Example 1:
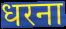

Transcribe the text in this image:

धरना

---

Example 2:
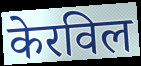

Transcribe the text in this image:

केरविल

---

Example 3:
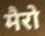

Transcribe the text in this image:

मैरो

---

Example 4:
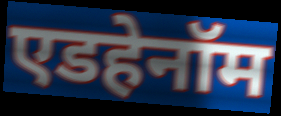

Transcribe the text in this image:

एडहेनॉम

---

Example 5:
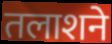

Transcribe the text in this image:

तलाशने